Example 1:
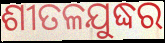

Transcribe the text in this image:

ଶୀତଳଯୁଦ୍ଧର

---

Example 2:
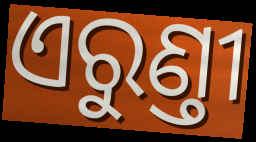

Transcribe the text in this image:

ଏରୁଣ୍ତୀ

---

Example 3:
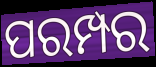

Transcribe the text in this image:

ପରମ୍ପର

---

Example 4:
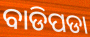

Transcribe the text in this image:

ବାଡିପଡା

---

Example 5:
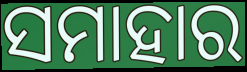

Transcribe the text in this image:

ସମାହାର